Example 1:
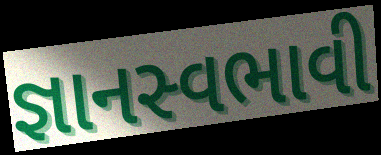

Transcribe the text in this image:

જ્ઞાનસ્વભાવી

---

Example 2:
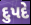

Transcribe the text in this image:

દુપદે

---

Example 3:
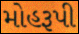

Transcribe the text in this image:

મોહરૂપી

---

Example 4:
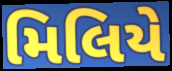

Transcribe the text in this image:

મિલિયે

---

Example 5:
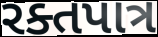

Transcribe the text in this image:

રક્તપાત્ર